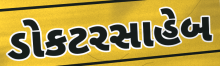
ડોકટરસાહેબ